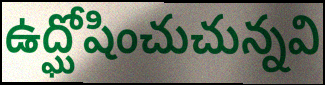
ఉద్ఘోషించుచున్నవి